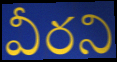
వీరని